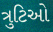
ત્રુટિઓ